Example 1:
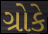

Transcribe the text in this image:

ગ્રોકે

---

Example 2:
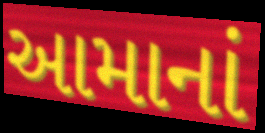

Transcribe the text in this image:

આમાનાં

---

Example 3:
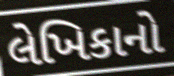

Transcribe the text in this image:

લેખિકાનો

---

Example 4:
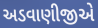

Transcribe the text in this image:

અડવાણીજીએ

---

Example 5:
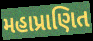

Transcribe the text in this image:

મહાપ્રાણિત